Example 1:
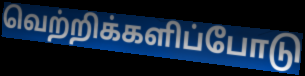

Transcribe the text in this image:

வெற்றிக்களிப்போடு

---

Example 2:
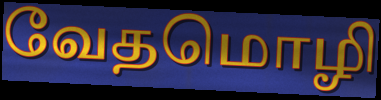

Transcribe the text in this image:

வேதமொழி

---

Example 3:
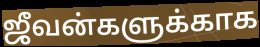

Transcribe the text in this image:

ஜீவன்களுக்காக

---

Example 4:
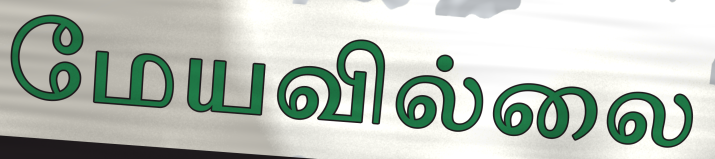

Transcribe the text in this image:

மேயவில்லை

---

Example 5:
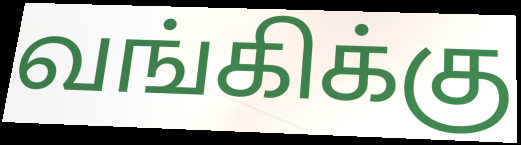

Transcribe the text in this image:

வங்கிக்கு